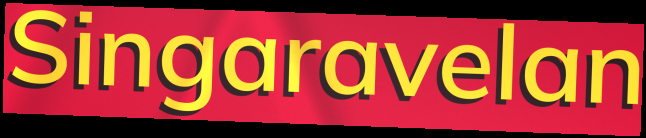
Singaravelan